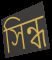
সিন্ধ